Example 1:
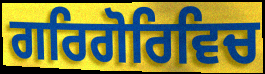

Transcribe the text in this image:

ਗਰਿਗੋਰਿਵਿਚ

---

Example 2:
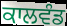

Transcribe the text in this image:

ਕਾਲਵੰਡ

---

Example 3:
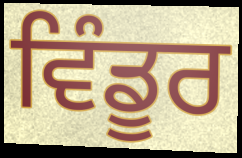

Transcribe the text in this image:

ਵਿੰਡੂਰ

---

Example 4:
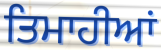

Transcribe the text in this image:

ਤਿਮਾਹੀਆਂ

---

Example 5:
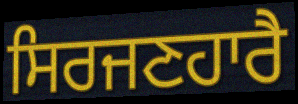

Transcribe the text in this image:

ਸਿਰਜਣਹਾਰੈ